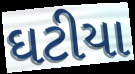
ઘટીયા